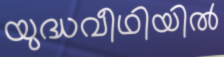
യുദ്ധവീഥിയിൽ